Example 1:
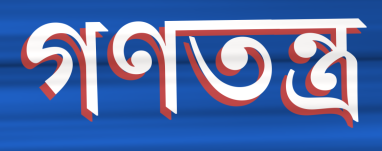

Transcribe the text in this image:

গণতন্ত্র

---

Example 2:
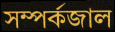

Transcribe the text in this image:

সম্পর্কজাল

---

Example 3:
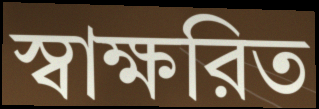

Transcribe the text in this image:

স্বাক্ষরিত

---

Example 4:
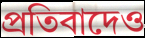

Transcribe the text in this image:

প্রতিবাদেও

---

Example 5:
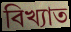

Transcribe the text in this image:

বিখ্যাত